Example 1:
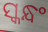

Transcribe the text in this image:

ସ୍କନ୍ଧଂ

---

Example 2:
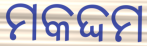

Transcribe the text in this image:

ମକଦ୍ଦମ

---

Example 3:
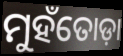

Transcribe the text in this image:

ମୁହଁତୋଡ଼ା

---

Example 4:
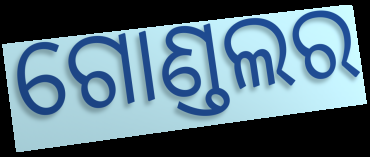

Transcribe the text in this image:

ଗୋଣ୍ଡଲର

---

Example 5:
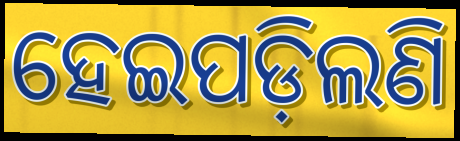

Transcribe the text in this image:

ହେଇପଡ଼ିଲଣି